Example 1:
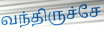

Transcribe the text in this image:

வந்திருச்சே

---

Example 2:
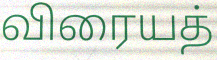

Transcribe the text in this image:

விரையத்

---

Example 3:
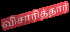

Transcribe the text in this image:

விசாரித்தார்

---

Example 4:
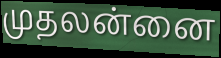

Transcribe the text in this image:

முதலன்னை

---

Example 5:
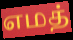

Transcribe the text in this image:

எமத்